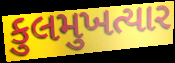
કુલમુખત્યાર